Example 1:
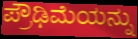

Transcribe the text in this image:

ಪ್ರೌಢಿಮೆಯನ್ನು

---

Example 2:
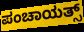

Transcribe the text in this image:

ಪಂಚಾಯತ್ಸ್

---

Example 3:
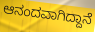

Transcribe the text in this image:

ಆನಂದವಾಗಿದ್ದಾನೆ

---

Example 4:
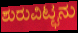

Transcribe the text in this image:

ಶುರುವಿಟ್ಟನು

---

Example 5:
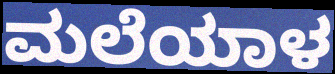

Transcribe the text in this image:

ಮಲೆಯಾಳ